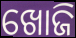
ଖୋଜି